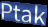
Ptak